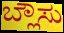
ಬ್ಲೌಸು